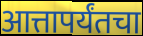
आत्तापर्यंतचा